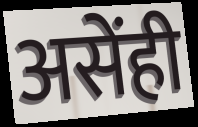
असेंही